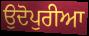
ਉਦੋਪੁਰੀਆ